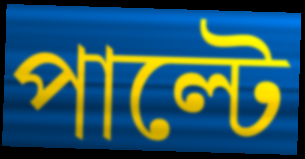
পাল্টে